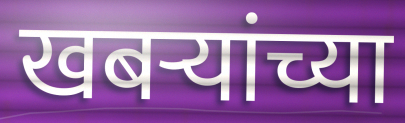
खबऱ्यांच्या